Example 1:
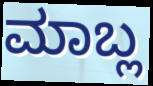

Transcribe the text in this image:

ಮಾಬ್ಲ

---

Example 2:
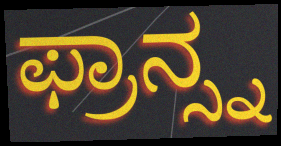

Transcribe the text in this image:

ಫ್ರಾನ್ಸ್ನ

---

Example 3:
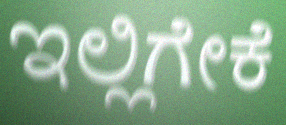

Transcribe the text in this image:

ಇಲ್ಲಿಗೇಕೆ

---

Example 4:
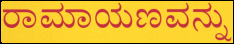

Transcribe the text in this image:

ರಾಮಾಯಣವನ್ನು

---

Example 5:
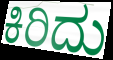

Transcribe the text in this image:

ಕಿರಿದು